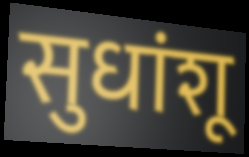
सुधांशू